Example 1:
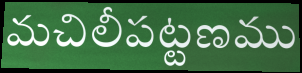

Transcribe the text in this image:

మచిలీపట్టణము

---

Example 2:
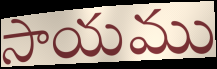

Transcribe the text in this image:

సాయము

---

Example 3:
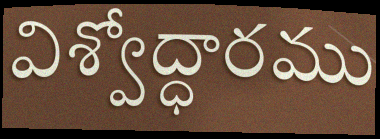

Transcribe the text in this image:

విశ్వోద్ధారము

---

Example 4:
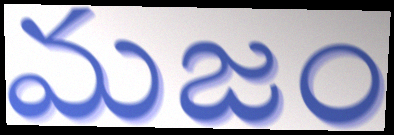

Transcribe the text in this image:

మజం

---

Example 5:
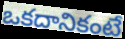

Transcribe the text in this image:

ఒకదానికంటే